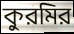
কুরমির